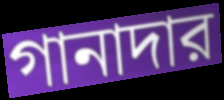
গানাদার